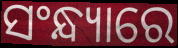
ସଂନ୍ଧ୍ୟାରେ